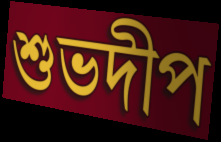
শুভদীপ